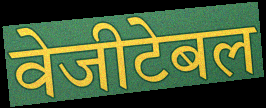
वेजीटेबल